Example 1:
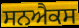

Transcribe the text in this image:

ਸਨਐਕਸ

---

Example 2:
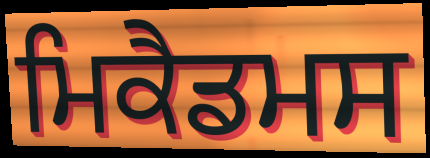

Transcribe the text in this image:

ਮਿਕੈਡਮਸ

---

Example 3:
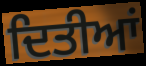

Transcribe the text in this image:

ਦਿਤੀਆਂ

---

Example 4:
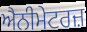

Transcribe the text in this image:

ਐਨੀਮੇਟਰਜ਼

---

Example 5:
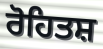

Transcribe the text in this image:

ਰੋਹਿਤਸ਼